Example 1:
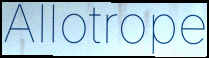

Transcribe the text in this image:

Allotrope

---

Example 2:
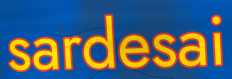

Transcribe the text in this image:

sardesai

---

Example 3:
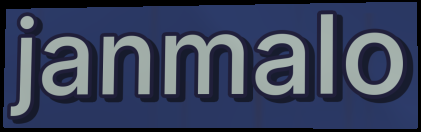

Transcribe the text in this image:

janmalo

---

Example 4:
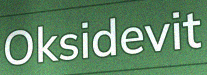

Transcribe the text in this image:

Oksidevit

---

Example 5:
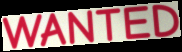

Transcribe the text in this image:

WANTED